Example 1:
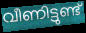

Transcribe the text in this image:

വീണിട്ടുണ്ട്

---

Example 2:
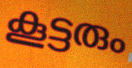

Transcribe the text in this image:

കൂട്ടരും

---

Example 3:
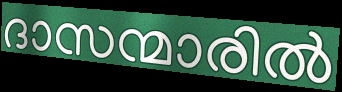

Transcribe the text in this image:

ദാസന്മാരിൽ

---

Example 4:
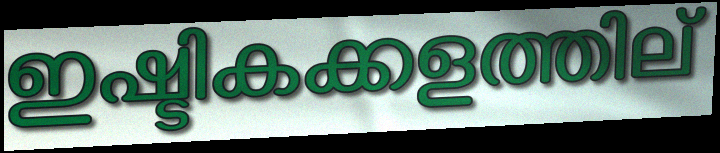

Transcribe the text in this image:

ഇഷ്ടികക്കളത്തില്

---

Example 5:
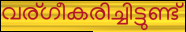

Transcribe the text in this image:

വര്ഗീകരിച്ചിട്ടുണ്ട്